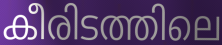
കീരിടത്തിലെ